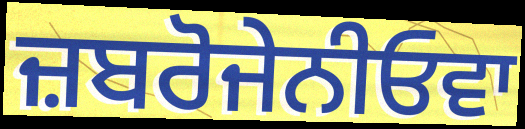
ਜ਼ਬਰੋਜੇਨੀਓਵਾ